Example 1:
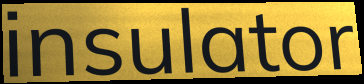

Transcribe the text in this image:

insulator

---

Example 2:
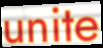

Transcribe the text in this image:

unite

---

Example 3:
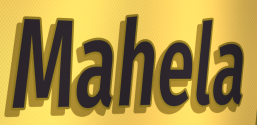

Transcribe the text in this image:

Mahela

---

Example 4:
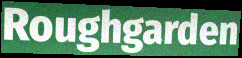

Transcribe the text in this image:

Roughgarden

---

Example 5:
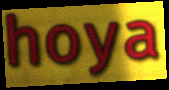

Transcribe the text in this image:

hoya